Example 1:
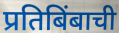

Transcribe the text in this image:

प्रतिबिंबाची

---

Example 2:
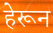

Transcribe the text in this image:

हेरून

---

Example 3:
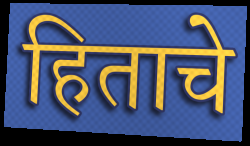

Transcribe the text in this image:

हिताचे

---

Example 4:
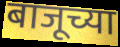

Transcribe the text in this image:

बाजूच्या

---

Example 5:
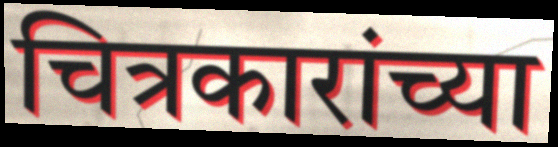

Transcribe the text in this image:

चित्रकारांच्या